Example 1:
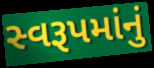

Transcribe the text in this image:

સ્વરૂપમાંનું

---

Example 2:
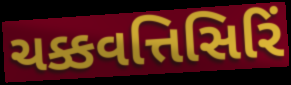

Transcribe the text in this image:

ચક્કવત્તિસિરિં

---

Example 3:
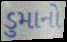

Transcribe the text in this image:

ડુમાનો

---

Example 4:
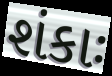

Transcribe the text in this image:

શંકાઃ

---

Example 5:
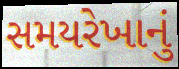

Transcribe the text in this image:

સમયરેખાનું